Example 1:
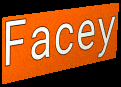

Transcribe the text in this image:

Facey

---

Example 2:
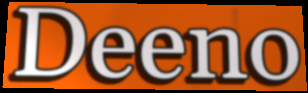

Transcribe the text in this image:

Deeno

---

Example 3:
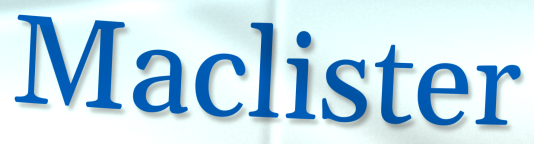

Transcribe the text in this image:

Maclister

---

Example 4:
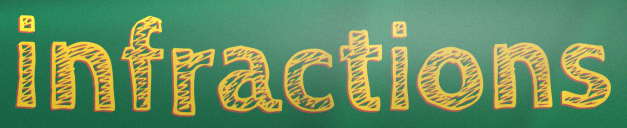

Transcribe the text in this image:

infractions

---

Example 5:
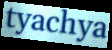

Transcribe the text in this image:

tyachya